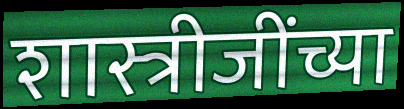
शास्त्रीजींच्या